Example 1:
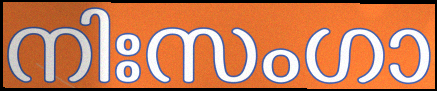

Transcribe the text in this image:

നിഃസംഗാ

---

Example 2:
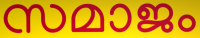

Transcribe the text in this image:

സമാജം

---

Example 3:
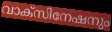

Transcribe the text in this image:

വാക്സിനേഷനും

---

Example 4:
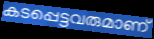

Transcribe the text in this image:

കടപ്പെട്ടവരുമാണ്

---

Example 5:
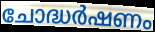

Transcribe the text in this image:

ചോദ്ധർഷണം